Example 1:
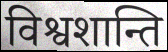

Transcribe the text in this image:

विश्वशान्ति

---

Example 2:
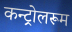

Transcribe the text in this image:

कन्ट्रोलरूम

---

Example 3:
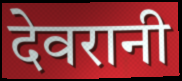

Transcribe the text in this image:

देवरानी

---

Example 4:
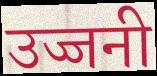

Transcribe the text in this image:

उज्जनी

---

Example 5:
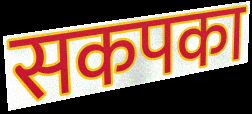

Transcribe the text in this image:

सकपका